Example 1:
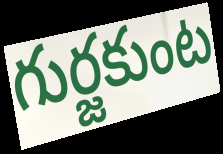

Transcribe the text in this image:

గుర్జకుంట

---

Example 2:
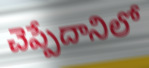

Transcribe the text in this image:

చెప్పేదానిలో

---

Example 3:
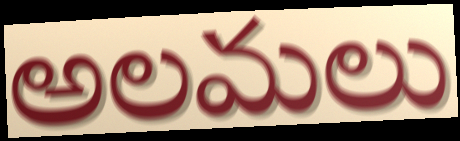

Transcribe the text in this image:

అలమలు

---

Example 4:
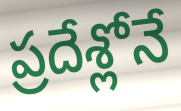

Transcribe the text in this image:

ప్రదేశ్లోనే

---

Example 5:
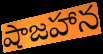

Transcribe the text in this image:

షాజహాన